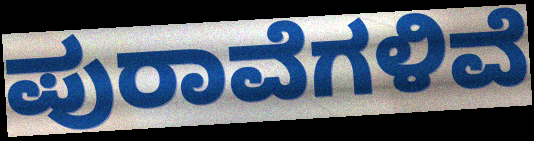
ಪುರಾವೆಗಳಿವೆ